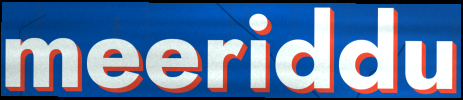
meeriddu